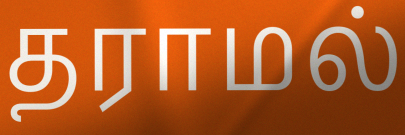
தராமல்